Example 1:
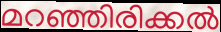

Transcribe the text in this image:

മറഞ്ഞിരിക്കൽ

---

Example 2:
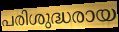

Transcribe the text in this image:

പരിശുദ്ധരായ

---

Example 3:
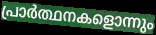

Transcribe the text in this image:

പ്രാർത്ഥനകളൊന്നും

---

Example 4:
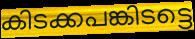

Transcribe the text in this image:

കിടക്കപങ്കിടട്ടെ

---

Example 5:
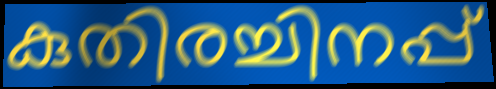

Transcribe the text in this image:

കുതിരച്ചിനപ്പ്